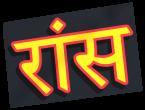
रांस